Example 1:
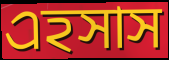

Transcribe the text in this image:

এহসাস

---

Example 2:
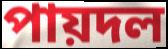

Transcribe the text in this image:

পায়দল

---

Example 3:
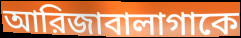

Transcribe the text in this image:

আরিজাবালাগাকে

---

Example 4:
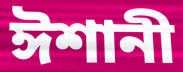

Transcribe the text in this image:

ঈশানী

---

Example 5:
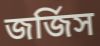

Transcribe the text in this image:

জর্জিস